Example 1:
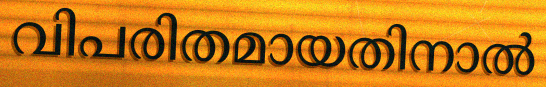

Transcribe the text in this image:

വിപരിതമായതിനാൽ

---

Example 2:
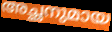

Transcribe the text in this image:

അച്ഛനുമായ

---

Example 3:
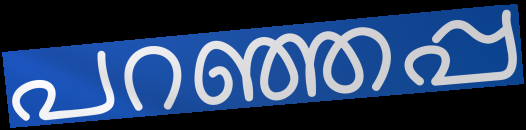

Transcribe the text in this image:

പറഞ്ഞപ്പ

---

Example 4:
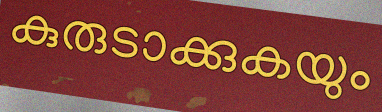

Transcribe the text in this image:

കുരുടാക്കുകയും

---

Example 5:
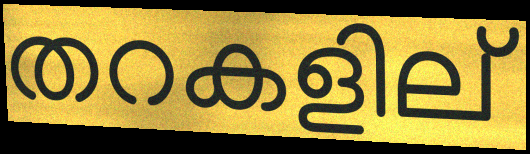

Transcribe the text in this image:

തറകളില്